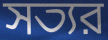
সত্যর